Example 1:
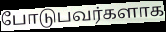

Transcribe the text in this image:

போடுபவர்களாக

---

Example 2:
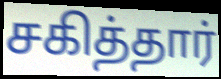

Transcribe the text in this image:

சகித்தார்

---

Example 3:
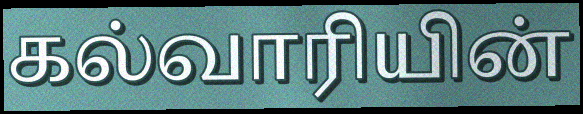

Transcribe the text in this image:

கல்வாரியின்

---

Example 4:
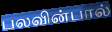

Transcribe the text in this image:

பலவின்பால்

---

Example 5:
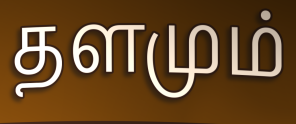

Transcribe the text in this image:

தளமும்